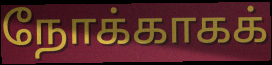
நோக்காகக்